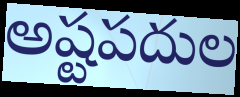
అష్టపదుల